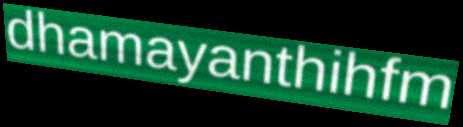
dhamayanthihfm